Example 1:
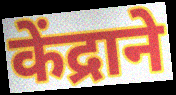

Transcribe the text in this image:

केंद्राने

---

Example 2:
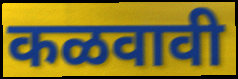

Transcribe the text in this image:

कळवावी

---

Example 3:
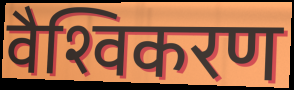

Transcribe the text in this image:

वैश्विकरण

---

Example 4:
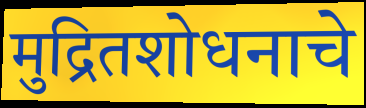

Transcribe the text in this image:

मुद्रितशोधनाचे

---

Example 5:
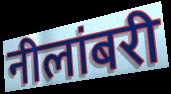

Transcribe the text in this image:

नीलांबरी